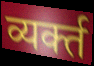
व्यर्क्त